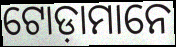
ଟୋଡ଼ାମାନେ